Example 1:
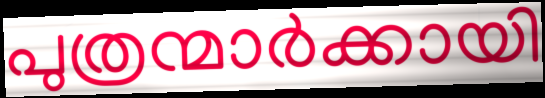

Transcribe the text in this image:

പുത്രന്മാർക്കായി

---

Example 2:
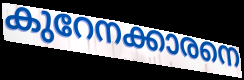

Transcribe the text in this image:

കുറേനക്കാരനെ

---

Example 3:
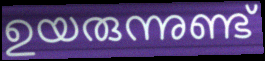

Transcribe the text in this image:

ഉയരുന്നുണ്ട്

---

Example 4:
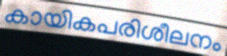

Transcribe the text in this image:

കായികപരിശീലനം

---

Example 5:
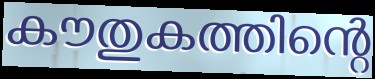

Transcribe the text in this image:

കൗതുകത്തിന്റെ